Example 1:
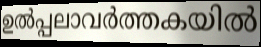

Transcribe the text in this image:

ഉൽപ്പലാവർത്തകയിൽ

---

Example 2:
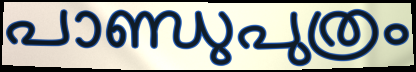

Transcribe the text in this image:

പാണ്ഡുപുത്രം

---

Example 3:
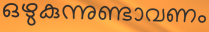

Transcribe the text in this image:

ഒഴുകുന്നുണ്ടാവണം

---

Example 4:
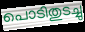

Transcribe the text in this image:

പൊടിതുടച്ചു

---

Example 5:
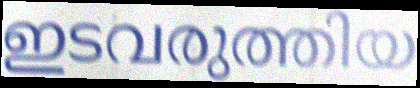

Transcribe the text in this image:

ഇടവരുത്തിയ